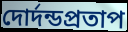
দোর্দন্ডপ্রতাপ